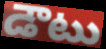
డౌటు